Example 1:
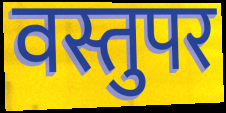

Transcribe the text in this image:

वस्तुपर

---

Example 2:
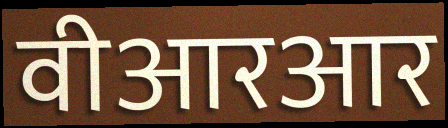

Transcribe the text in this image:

वीआरआर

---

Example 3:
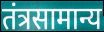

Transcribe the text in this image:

तंत्रसामान्य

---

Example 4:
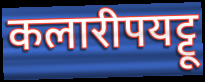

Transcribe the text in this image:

कलारीपयट्टू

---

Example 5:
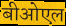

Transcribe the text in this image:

बीओएल